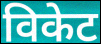
विकेट